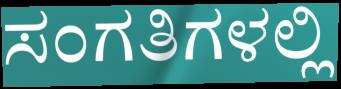
ಸಂಗತಿಗಳಲ್ಲಿ